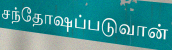
சந்தோஷப்படுவான்